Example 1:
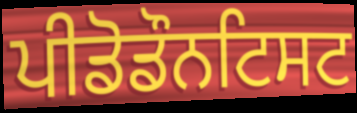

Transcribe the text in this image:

ਪੀਡੋਡੌਨਟਿਸਟ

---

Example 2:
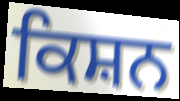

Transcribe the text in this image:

ਕਿਸ਼ਨ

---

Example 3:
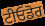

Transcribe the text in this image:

ਟੀਓਡੋਰ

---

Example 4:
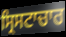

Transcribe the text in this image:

ਸ੍ਰਿਸਟਾਚਾਰ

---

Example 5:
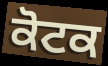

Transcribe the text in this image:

ਕੋਟਕ